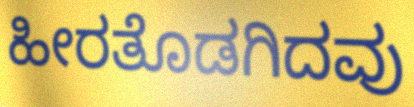
ಹೀರತೊಡಗಿದವು